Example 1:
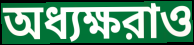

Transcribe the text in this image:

অধ্যক্ষরাও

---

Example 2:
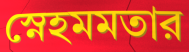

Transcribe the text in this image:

স্নেহমমতার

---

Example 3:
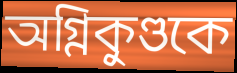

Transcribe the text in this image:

অগ্নিকুণ্ডকে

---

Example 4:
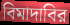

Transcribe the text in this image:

বিমাদাবির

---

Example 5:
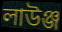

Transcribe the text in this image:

লাউঞ্জ